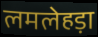
लमलेहड़ा